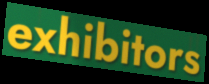
exhibitors